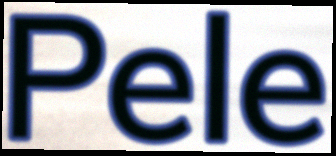
Pele